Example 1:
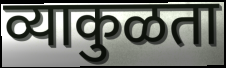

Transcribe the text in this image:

व्याकुळता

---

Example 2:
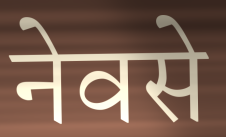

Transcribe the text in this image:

नेवसे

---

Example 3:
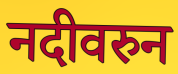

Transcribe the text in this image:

नदीवरुन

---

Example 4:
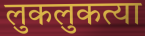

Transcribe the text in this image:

लुकलुकत्या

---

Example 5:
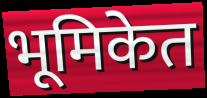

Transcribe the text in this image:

भूमिकेत